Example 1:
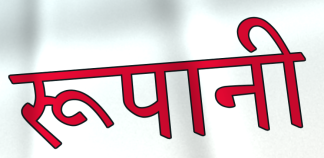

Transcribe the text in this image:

रूपानी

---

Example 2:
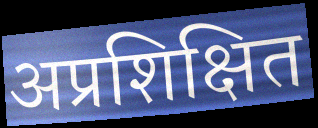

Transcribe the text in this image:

अप्रशिक्षित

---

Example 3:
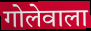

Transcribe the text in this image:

गोलेवाला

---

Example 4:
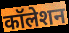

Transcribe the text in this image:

कॉलेशन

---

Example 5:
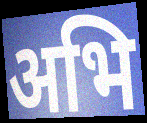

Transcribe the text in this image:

अभि